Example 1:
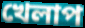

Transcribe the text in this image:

খেলাপ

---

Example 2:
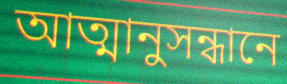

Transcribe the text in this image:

আত্মানুসন্ধানে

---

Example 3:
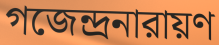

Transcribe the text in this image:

গজেন্দ্রনারায়ণ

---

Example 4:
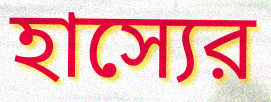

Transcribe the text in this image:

হাস্যের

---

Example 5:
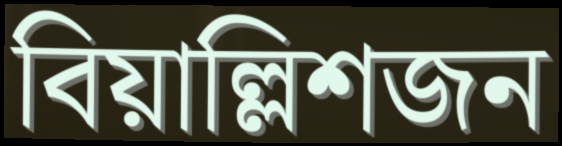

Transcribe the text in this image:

বিয়াল্লিশজন